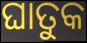
ଘାତୁକ